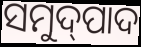
ସମୁଦ୍‌ପାଦ